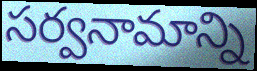
సర్వనామాన్ని